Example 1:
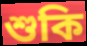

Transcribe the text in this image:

শুকি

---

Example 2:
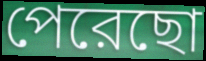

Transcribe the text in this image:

পেরেছো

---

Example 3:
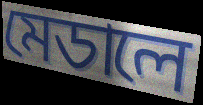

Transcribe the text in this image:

মেডালে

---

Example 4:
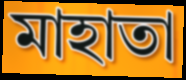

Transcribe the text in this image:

মাহাতা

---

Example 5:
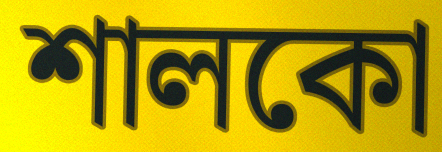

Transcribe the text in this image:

শালকো